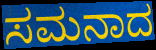
ಸಮನಾದ